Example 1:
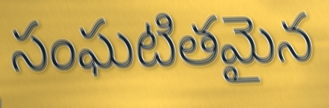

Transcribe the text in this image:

సంఘటితమైన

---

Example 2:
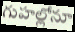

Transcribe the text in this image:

గుహల్లోనూ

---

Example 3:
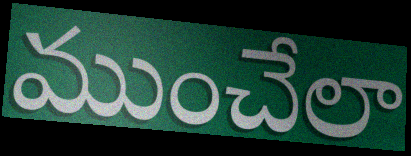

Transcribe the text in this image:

ముంచేలా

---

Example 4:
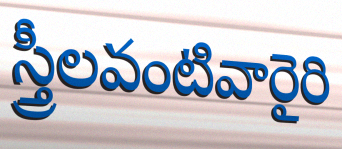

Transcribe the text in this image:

స్త్రీలవంటివారైరి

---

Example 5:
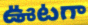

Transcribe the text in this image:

ఊటగా